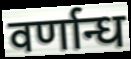
वर्णान्ध